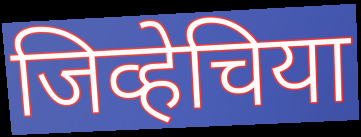
जिव्हेचिया